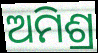
ଅମିଶ୍ର